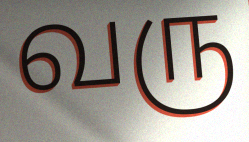
வரு